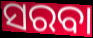
ସରବା